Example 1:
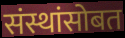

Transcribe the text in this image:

संस्थांसोबत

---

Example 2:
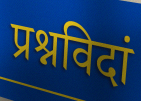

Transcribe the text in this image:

प्रश्नविदां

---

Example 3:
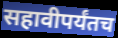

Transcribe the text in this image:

सहावीपर्यंतच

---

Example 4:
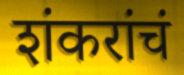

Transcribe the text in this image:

शंकरांचं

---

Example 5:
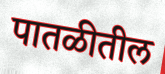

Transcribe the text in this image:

पातळीतील